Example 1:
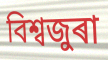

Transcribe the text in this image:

বিশ্বজুৰা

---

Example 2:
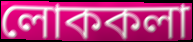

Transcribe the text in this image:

লোককলা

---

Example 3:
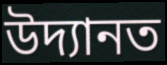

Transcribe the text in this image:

উদ্যানত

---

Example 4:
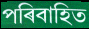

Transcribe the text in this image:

পৰিবাহিত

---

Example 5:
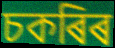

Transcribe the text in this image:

চকৰিৰ